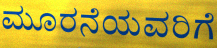
ಮೂರನೆಯವರಿಗೆ